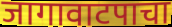
जागावाटपाचा